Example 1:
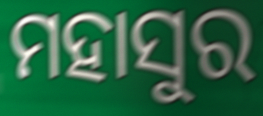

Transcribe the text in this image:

ମହାସୁର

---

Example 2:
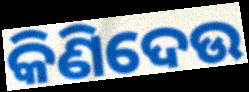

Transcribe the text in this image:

କିଣିଦେଉ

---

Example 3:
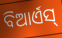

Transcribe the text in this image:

ବିଆର୍ଏସ୍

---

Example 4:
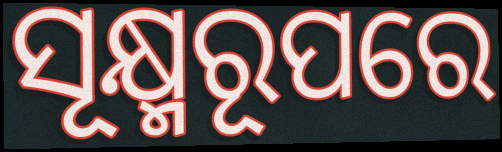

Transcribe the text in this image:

ସୂକ୍ଷ୍ମରୂପରେ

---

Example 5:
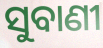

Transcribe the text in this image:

ସୁବାଣୀ